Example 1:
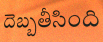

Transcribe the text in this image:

దెబ్బతీసింది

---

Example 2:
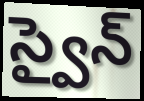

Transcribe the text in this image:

స్వైన్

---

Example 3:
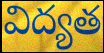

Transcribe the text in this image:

విద్యత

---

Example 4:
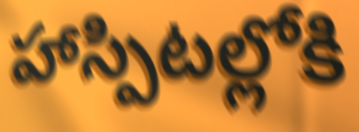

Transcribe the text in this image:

హాస్పిటల్లోకి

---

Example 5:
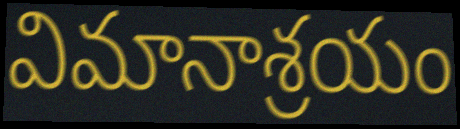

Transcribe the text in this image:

విమానాశ్రయం